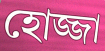
হোজ্জা